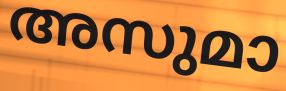
അസുമാ